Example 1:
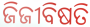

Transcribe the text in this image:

ଜିଜୀବିଷତି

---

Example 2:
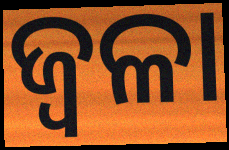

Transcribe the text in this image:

ଜ୍ଵଳା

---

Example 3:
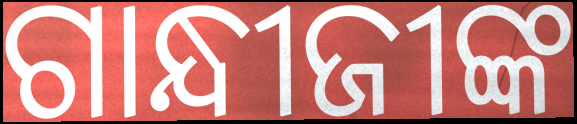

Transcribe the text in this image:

ଗାନ୍ଧୀଜୀଙ୍କ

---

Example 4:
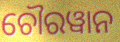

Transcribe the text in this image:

ଚୌରୱାନ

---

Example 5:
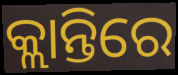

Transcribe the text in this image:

କ୍ଲାନ୍ତିରେ